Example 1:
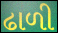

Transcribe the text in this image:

ઢાળી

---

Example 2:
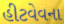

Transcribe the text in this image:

હીટવેવના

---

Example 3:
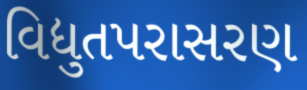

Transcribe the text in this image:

વિદ્યુતપરાસરણ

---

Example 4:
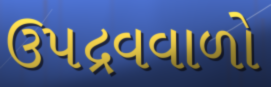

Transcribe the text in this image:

ઉપદ્રવવાળો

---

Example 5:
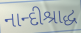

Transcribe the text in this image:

નાન્દીશ્રાદ્ધ